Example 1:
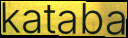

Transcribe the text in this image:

kataba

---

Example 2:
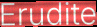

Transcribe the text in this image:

Erudite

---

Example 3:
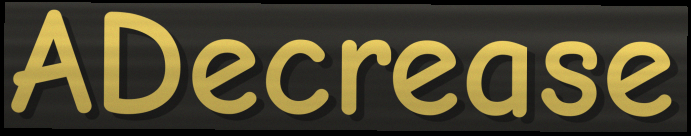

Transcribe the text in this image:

ADecrease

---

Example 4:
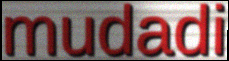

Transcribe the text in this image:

mudadi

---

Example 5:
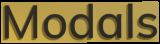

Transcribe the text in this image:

Modals